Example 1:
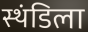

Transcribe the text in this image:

स्थंडिला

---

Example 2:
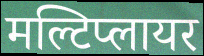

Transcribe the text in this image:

मल्टिप्लायर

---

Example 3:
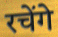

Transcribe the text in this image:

रचेंगे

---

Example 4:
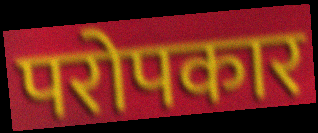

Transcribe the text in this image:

परोपकार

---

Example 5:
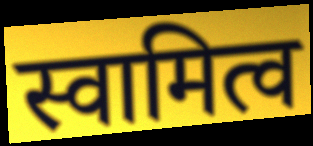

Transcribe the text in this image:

स्वामित्व